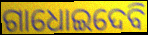
ଗାଧୋଇଦେବି